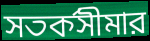
সতর্কসীমার